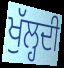
ਖੁੱਲ੍ਹਦੀ